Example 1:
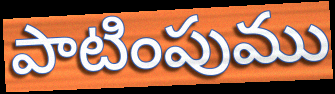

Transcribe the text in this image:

పాటింపుము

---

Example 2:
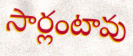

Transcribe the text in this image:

సార్లంటావు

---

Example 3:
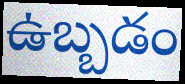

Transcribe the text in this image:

ఉబ్బడం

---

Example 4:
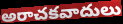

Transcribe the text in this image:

అరాచకవాదులు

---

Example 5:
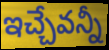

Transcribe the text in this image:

ఇచ్చేవన్నీ